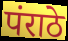
पंराठे